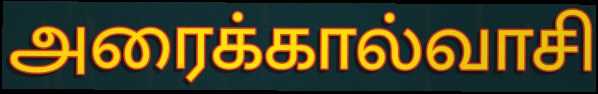
அரைக்கால்வாசி